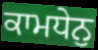
ਕਾਮਧੇਨੁ